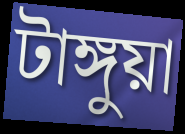
টাঙ্গুয়া